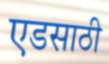
एडसाठी